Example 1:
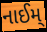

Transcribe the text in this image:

નાઈમ્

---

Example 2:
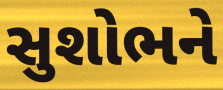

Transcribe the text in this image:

સુશોભને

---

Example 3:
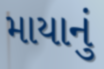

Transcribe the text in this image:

માયાનું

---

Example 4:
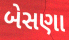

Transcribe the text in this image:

બેસણા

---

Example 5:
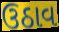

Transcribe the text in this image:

ઉઠાવ